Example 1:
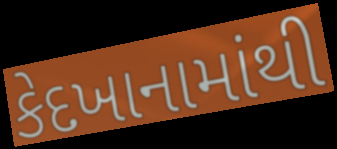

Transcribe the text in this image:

કેદખાનામાંથી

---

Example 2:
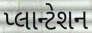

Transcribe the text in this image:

પ્લાન્ટેશન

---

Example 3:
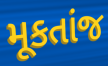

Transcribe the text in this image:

મૂકતાંજ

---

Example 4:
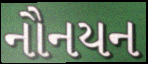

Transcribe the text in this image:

નૌનયન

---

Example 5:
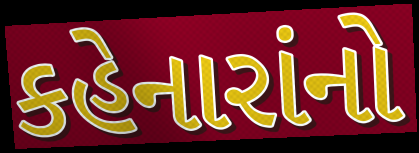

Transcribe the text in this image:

કહેનારાંનો